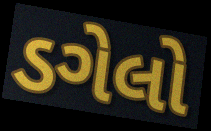
ડગેલો